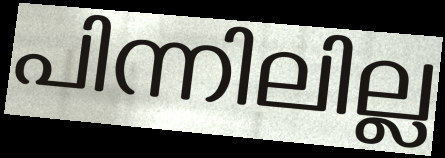
പിന്നിലില്ല